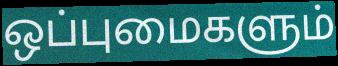
ஒப்புமைகளும்